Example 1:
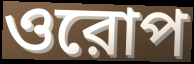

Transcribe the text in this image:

ওরোপ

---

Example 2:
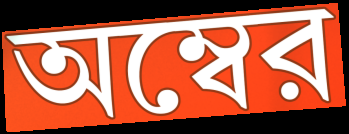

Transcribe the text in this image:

অম্বের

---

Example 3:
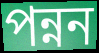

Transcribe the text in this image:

পন্নন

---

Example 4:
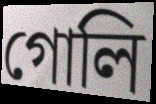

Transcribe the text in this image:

গোলি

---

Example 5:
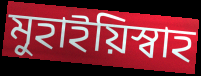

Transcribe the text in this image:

মুহাইয়িস্বাহ